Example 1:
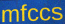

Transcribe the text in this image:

mfccs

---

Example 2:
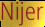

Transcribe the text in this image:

Nijer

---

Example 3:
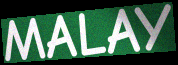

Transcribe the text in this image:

MALAY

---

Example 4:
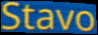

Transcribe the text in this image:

Stavo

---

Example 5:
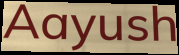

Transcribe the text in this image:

Aayush